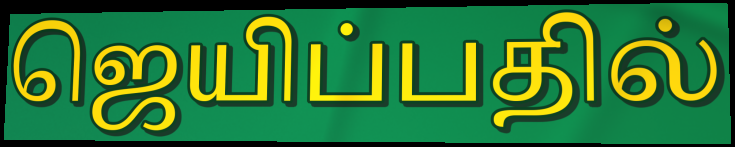
ஜெயிப்பதில்